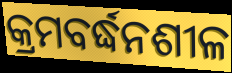
କ୍ରମବର୍ଦ୍ଧନଶୀଳ